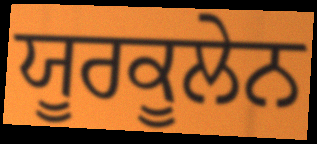
ਯੂਰਕੂਲੇਨ